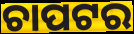
ଚାପଟର